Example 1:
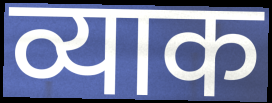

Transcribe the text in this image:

व्याक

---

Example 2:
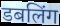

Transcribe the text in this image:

डबलिंग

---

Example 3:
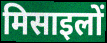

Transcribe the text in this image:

मिसाइलों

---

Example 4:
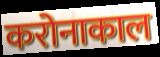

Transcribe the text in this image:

करोनाकाल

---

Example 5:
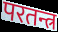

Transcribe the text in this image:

परतन्त्र